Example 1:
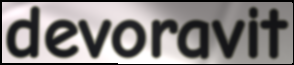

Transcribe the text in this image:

devoravit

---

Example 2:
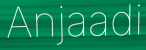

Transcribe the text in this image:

Anjaadi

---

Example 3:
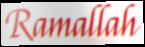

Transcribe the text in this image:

Ramallah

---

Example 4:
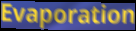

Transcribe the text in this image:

Evaporation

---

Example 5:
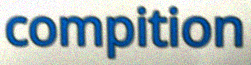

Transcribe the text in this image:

compition